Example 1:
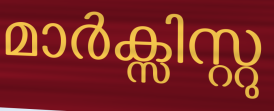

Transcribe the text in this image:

മാർക്സിസ്റ്റു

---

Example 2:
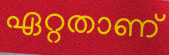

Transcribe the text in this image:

ഏറ്റതാണ്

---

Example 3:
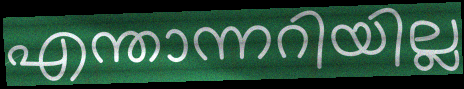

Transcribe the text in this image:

എന്താന്നറിയില്ല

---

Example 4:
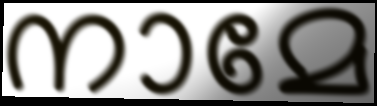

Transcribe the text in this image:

നാമേ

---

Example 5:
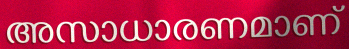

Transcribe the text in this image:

അസാധാരണമാണ്